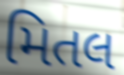
મિતલ